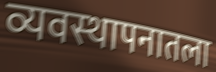
व्यवस्थापनातला